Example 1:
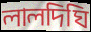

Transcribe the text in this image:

লালদিঘি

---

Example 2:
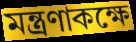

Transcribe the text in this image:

মন্ত্রণাকক্ষে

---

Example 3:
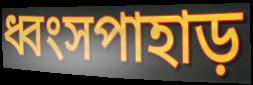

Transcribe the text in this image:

ধ্বংসপাহাড়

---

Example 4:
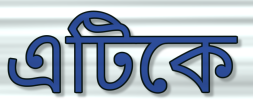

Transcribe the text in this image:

এটিকে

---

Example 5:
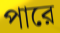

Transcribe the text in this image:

পারে